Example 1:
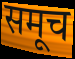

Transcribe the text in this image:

समूच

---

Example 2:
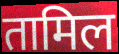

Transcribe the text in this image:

तामिल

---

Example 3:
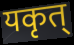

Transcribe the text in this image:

यकृत्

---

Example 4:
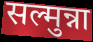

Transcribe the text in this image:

सल्मुन्ना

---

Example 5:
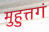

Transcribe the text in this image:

मुहुत्तगं